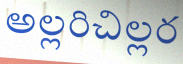
అల్లరిచిల్లర